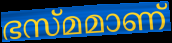
ഭസ്മമാണ്